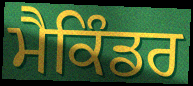
ਮੈਕਿੰਡਰ